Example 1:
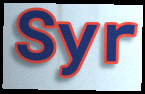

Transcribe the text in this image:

Syr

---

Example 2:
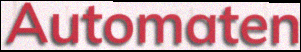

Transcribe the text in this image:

Automaten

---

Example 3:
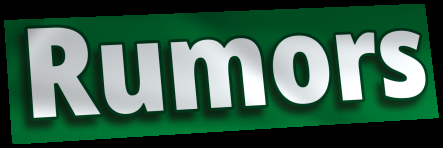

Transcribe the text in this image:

Rumors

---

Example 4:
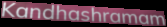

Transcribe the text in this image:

Kandhashramam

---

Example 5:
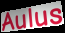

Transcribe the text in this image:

Aulus